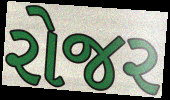
રોજર